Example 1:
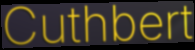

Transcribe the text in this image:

Cuthbert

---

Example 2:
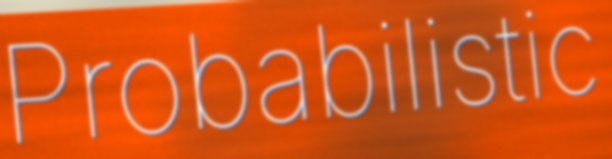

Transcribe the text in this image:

Probabilistic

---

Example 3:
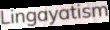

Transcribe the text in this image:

Lingayatism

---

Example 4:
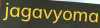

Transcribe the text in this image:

jagavyoma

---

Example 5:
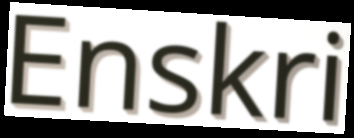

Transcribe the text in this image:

Enskri